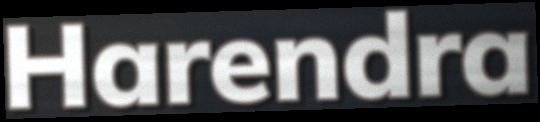
Harendra